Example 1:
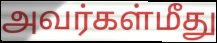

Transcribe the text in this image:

அவர்கள்மீது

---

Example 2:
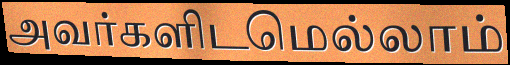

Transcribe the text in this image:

அவர்களிடமெல்லாம்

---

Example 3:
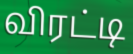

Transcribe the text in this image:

விரட்டி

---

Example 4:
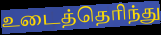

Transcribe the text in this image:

உடைத்தெரிந்து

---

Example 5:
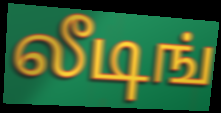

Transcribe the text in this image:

லீடிங்